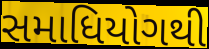
સમાધિયોગથી